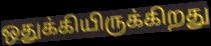
ஒதுக்கியிருக்கிறது